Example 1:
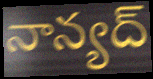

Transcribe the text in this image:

నాన్యద్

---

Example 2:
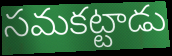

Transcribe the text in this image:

సమకట్టాడు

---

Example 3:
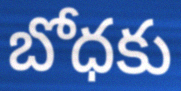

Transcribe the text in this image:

బోధకు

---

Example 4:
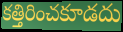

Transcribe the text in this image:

కత్తిరించకూడదు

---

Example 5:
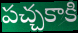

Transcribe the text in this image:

పచ్చకాకి